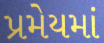
પ્રમેયમાં